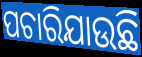
ପଚାରିଯାଉଛି